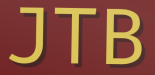
JTB